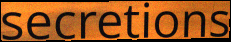
secretions